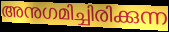
അനുഗമിച്ചിരിക്കുന്ന